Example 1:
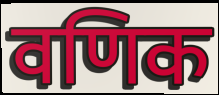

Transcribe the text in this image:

वणिक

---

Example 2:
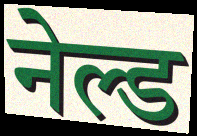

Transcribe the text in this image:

नेल्ड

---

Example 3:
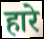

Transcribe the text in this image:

हारे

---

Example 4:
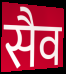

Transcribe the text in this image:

सैव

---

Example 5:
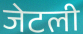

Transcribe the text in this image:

जेटली